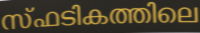
സ്ഫടികത്തിലെ